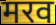
मरव